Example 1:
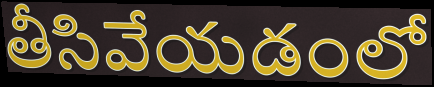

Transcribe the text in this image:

తీసివేయడంలో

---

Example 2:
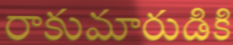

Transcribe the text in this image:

రాకుమారుడికి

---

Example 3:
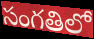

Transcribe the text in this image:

సంగతిలో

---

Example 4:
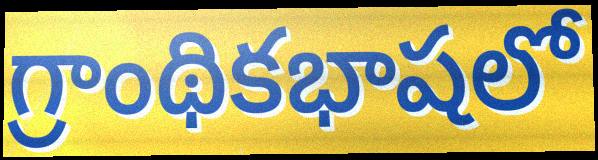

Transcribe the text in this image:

గ్రాంథికభాషలో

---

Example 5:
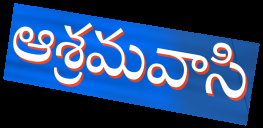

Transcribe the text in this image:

ఆశ్రమవాసి